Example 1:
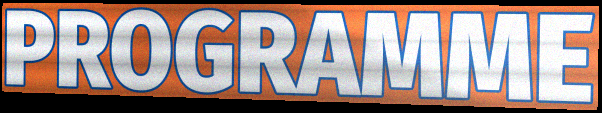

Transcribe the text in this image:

PROGRAMME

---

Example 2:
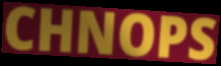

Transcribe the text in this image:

CHNOPS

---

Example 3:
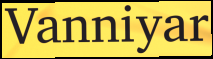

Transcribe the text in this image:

Vanniyar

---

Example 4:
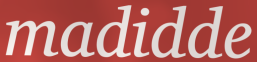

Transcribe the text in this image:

madidde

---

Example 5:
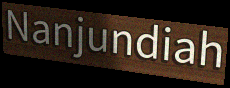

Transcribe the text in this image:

Nanjundiah